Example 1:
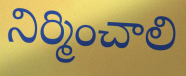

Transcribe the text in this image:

నిర్మించాలి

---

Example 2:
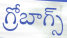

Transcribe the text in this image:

గ్రోబాగ్స్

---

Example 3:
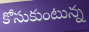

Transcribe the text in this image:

కోసుకుంటున్న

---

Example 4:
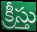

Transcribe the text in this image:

క్రీస్తు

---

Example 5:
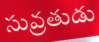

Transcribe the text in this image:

సువ్రతుడు